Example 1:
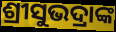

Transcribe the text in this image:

ଶ୍ରୀସୁଭଦ୍ରାଙ୍କ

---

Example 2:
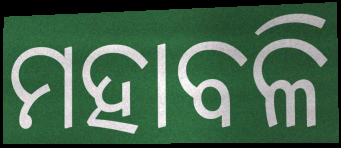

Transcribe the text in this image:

ମହାବଳି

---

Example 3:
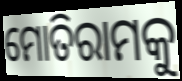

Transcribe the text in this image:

ମୋତିରାମକୁ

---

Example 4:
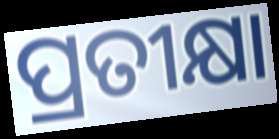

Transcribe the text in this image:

ପ୍ରତୀକ୍ଷା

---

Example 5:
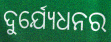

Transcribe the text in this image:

ଦୁର୍ଯ୍ୟେଧନର